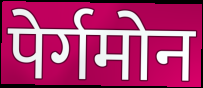
पेर्गमोन